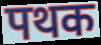
पथक